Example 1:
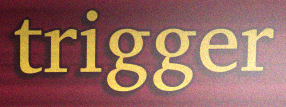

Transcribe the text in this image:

trigger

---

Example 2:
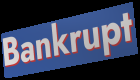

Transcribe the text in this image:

Bankrupt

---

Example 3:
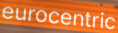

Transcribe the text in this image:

eurocentric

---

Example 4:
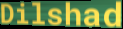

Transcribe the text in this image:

Dilshad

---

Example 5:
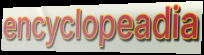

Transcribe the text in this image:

encyclopeadia